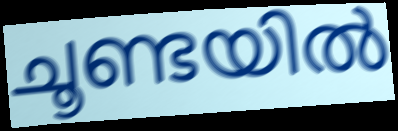
ചൂണ്ടയിൽ